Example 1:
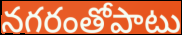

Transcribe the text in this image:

నగరంతోపాటు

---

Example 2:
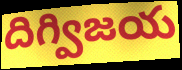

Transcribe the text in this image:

దిగ్విజయ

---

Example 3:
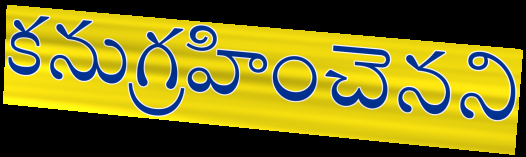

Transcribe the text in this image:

కనుగ్రహించెనని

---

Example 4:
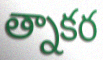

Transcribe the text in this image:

త్నాకర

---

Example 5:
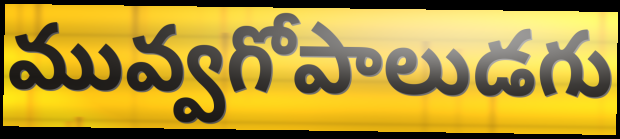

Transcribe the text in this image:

మువ్వగోపాలుడగు